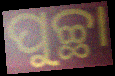
ପୁଚ୍ଛା